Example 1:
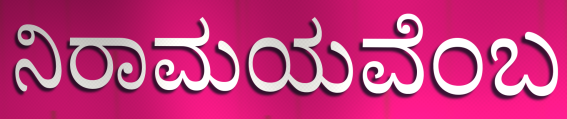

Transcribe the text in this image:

ನಿರಾಮಯವೆಂಬ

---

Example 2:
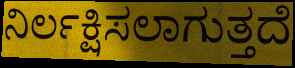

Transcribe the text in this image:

ನಿರ್ಲಕ್ಷಿಸಲಾಗುತ್ತದೆ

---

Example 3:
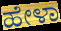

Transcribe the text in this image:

ಹೇಳಾ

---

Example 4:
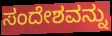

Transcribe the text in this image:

ಸಂದೇಶವನ್ನು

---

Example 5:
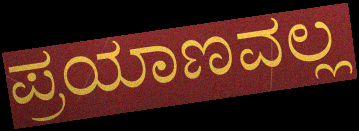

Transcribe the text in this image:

ಪ್ರಯಾಣವಲ್ಲ